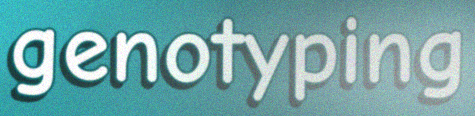
genotyping